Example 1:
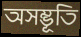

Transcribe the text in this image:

অসম্ভূতি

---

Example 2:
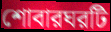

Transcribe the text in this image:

শোবারঘরটি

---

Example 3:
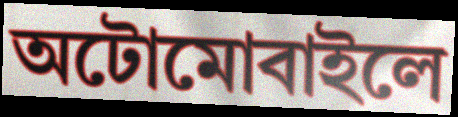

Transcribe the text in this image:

অটোমোবাইলে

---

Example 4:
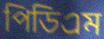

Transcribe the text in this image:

পিডিএম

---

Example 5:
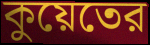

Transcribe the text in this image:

কুয়েতের